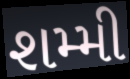
શમ્મી